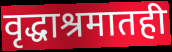
वृद्धाश्रमातही